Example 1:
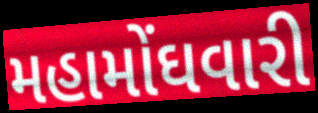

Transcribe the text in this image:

મહામોંઘવારી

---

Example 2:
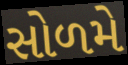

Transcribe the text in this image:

સોળમે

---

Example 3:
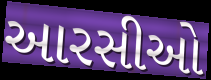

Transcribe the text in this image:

આરસીઓ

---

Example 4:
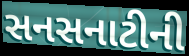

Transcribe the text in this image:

સનસનાટીની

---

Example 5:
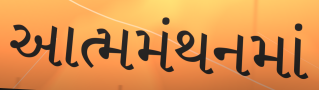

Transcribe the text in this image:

આત્મમંથનમાં